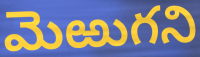
మెఱుగని